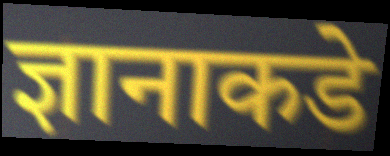
ज्ञानाकडे